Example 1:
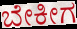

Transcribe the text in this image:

ಬೇಕೀಗ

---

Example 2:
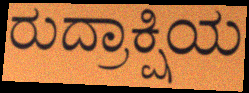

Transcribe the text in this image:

ರುದ್ರಾಕ್ಷಿಯ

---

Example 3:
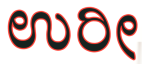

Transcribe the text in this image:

ಉರೀ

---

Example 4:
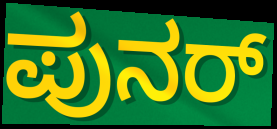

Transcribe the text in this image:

ಪುನರ್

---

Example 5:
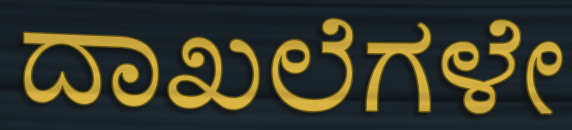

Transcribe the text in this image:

ದಾಖಲೆಗಳೇ